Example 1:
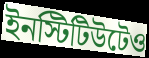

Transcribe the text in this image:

ইনস্টিটিউটেও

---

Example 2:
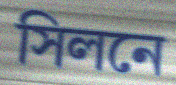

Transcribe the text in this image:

সিলনে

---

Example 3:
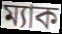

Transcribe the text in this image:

ম্যাক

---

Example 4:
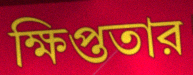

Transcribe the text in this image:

ক্ষিপ্ততার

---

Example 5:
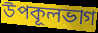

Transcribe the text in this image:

উপকূলভাগ